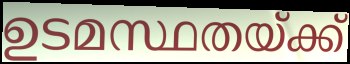
ഉടമസ്ഥതയ്ക്ക്